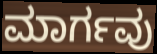
ಮಾರ್ಗವು